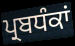
ਪ੍ਰਬਧੰਕਾਂ